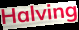
Halving